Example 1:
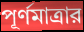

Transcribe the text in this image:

পূর্ণমাত্রার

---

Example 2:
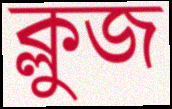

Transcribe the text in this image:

ক্লুজ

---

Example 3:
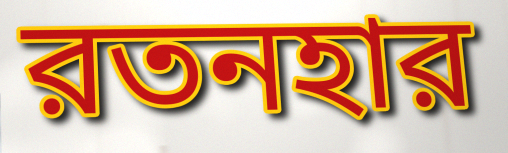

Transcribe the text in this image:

রতনহার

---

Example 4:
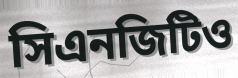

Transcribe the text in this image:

সিএনজিটিও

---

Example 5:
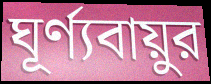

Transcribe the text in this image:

ঘূর্ণ্যবায়ুর